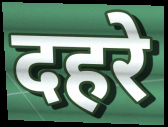
दहरे